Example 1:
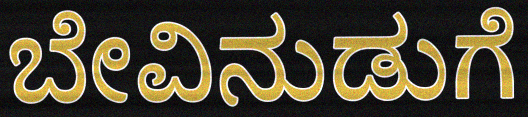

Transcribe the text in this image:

ಬೇವಿನುಡುಗೆ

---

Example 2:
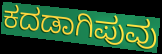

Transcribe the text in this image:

ಕದಡಾಗಿಪುವು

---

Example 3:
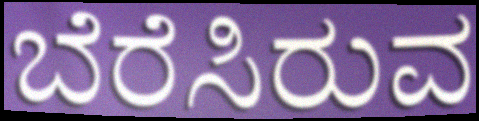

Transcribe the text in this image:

ಬೆರೆಸಿರುವ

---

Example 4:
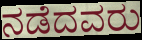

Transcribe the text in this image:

ನಡೆದವರು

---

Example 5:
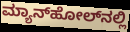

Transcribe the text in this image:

ಮ್ಯಾನ್‌ಹೋಲ್‌ನಲ್ಲಿ